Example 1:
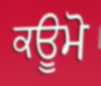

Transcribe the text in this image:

ਕਊਮੋ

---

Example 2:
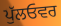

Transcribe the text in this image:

ਪੁੱਲਓਵਰ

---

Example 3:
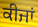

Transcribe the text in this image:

ਕੀਜਾਂ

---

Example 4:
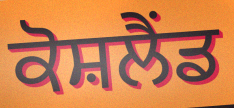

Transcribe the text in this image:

ਕੋਸ਼ਲੈਂਡ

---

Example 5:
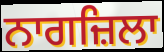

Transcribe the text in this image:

ਨਾਗਜ਼ਿਲਾ